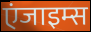
एंजाइम्‍स